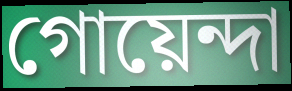
গোয়েন্দা